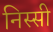
निस्सी